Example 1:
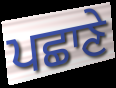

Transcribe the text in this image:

ਪਛਾਣੇ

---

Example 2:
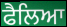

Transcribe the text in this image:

ਫੈਲਿਆ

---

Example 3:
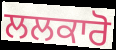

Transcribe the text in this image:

ਲਲਕਾਰੋ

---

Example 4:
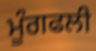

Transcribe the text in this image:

ਮੂੰਗਫਲੀ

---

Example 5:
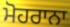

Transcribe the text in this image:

ਮੋਹਰਾਨਾ